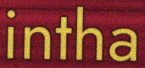
intha